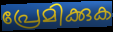
പ്രേമിക്കുക